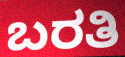
ಬರತಿ